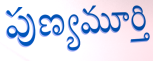
పుణ్యమూర్తి